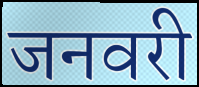
जनवरी